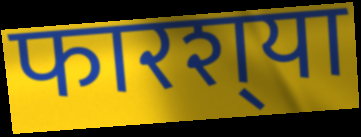
फारश्या